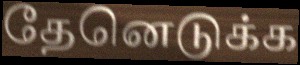
தேனெடுக்க